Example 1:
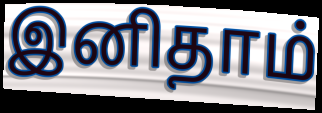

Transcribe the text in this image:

இனிதாம்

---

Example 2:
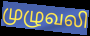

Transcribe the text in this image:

முழுவலி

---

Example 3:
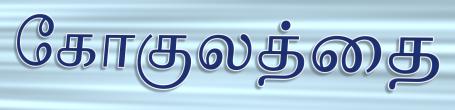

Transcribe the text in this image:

கோகுலத்தை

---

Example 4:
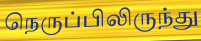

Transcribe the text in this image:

நெருப்பிலிருந்து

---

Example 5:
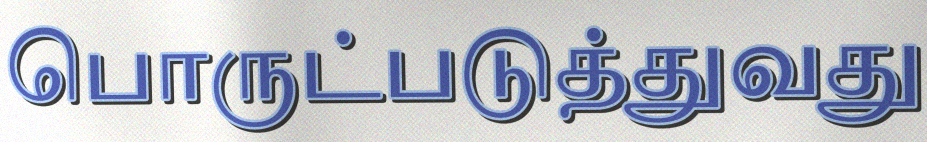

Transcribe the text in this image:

பொருட்படுத்துவது